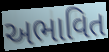
અભાવિત